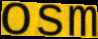
osm